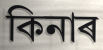
কিনাৰ